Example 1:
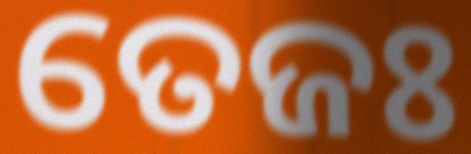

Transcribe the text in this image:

ତେଜଃ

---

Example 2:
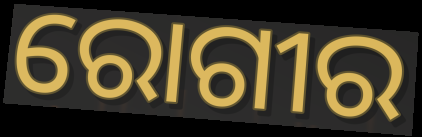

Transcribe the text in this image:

ରୋଗୀର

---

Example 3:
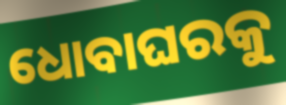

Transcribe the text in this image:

ଧୋବାଘରକୁ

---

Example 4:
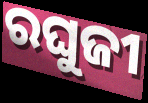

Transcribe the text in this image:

ରଘୁଜୀ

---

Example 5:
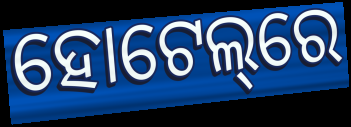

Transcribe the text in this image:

ହୋଟେଲ୍‌ରେ